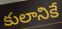
కులానికే